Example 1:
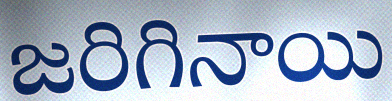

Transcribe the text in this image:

జరిగినాయి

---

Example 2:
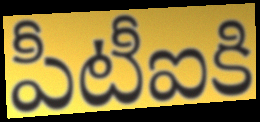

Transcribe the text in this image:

పీటీఐకి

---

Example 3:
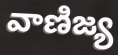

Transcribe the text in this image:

వాణిజ్య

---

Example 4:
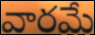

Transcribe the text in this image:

వారమే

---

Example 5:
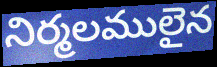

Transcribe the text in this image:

నిర్మలములైన